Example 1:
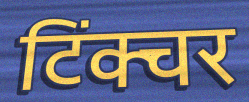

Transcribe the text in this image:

टिंक्चर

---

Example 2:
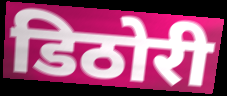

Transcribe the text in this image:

डिठोरी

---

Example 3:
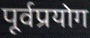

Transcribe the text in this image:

पूर्वप्रयोग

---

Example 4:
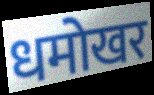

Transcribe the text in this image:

धमोखर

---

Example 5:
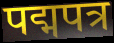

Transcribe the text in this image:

पद्मपत्र